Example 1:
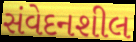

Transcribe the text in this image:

સંવેદનશીલ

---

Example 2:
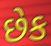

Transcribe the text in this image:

છેક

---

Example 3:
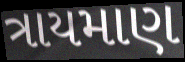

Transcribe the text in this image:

ત્રાયમાણ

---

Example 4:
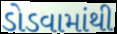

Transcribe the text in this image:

ડોડવામાંથી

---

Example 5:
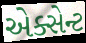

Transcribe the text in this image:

એક્સેન્ટ